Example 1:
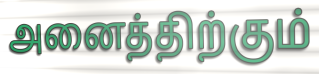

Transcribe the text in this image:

அனைத்திற்கும்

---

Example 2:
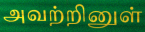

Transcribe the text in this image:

அவற்றினுள்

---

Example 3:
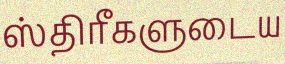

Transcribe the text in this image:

ஸ்திரீகளுடைய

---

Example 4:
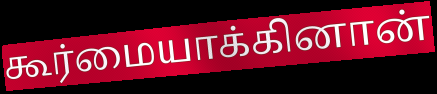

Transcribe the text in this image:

கூர்மையாக்கினான்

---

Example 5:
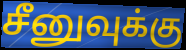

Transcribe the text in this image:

சீனுவுக்கு